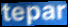
tepar